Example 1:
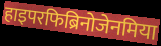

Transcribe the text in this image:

हाइपरफिब्रिनोजेनमिया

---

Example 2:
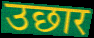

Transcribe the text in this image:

उछार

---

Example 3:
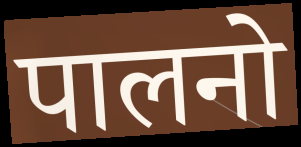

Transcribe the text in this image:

पालनो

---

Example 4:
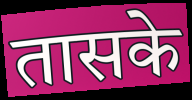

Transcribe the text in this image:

तासके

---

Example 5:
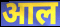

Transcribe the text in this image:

आल